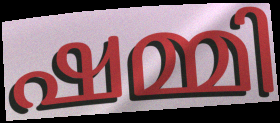
ഷമ്മി